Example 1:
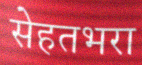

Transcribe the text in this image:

सेहतभरा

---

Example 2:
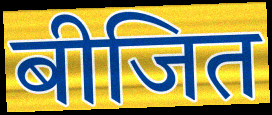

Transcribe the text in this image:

बीजित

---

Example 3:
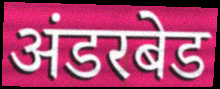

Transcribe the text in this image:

अंडरबेड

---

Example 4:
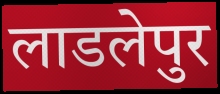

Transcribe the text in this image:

लाडलेपुर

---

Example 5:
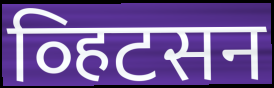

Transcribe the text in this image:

व्हिटसन